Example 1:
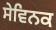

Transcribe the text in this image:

ਸੇਵਿਨਕ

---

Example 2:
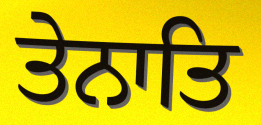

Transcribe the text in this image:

ਤੇਨਾਤਿ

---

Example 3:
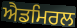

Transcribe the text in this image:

ਐਡਮਿਰਲ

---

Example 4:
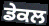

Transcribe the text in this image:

ਡੇਕਲ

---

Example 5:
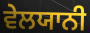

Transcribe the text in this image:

ਵੇਲਯਾਨੀ